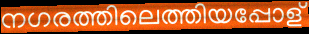
നഗരത്തിലെത്തിയപ്പോള്